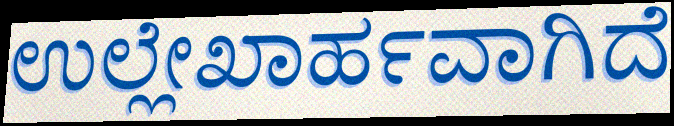
ಉಲ್ಲೇಖಾರ್ಹವಾಗಿದೆ